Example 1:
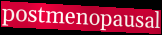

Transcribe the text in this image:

postmenopausal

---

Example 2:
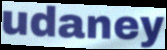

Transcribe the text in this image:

udaney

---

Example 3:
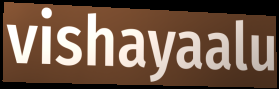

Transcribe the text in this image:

vishayaalu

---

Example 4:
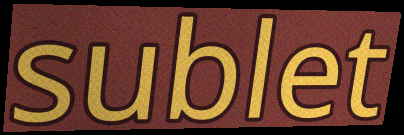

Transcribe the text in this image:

sublet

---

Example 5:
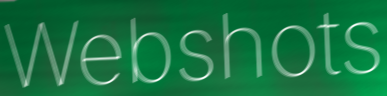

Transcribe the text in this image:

Webshots